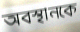
অবস্থানকে